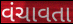
વંચાવતા